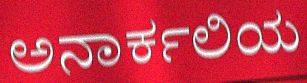
ಅನಾರ್ಕಲಿಯ